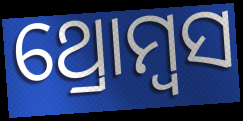
ଥ୍ରୋମ୍ବସ